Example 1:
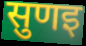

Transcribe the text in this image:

सुणइ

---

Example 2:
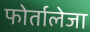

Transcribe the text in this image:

फोर्तालेजा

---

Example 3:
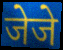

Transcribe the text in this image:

जेजे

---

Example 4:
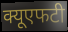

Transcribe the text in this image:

क्यूएफटी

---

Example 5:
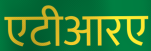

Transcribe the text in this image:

एटीआरए